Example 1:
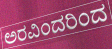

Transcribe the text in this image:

ಅರವಿಂದರಿಂದ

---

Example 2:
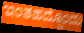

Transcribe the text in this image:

ಇಂತಹದ್ದೊಂದು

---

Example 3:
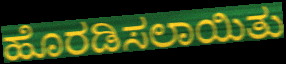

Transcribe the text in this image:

ಹೊರಡಿಸಲಾಯಿತು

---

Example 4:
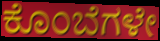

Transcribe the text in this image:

ಕೊಂಬೆಗಳೇ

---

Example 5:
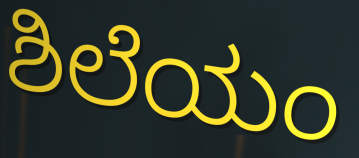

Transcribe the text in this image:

ಶಿಲೆಯಂ